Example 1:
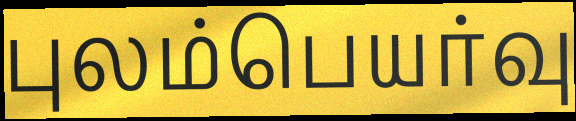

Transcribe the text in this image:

புலம்பெயர்வு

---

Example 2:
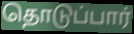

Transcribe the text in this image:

தொடுப்பார்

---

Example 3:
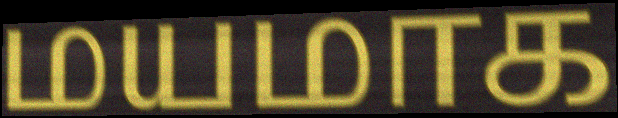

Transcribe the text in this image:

மயமாக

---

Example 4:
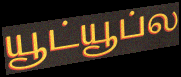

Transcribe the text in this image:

யூட்யூப்ல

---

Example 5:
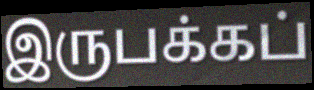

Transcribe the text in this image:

இருபக்கப்